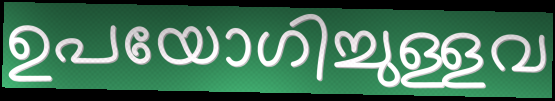
ഉപയോഗിച്ചുള്ളവ